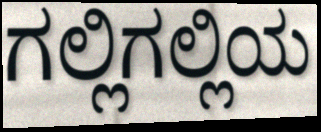
ಗಲ್ಲಿಗಲ್ಲಿಯ